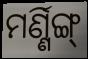
ମର୍ଣ୍ଣିଙ୍ଗ୍